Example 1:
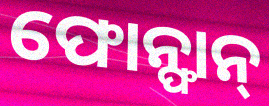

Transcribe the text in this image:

ଫୋନ୍ଫାନ୍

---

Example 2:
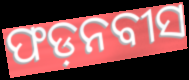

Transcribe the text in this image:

ଫଡ଼ନବୀସ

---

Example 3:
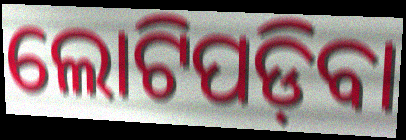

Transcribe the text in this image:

ଲୋଟିପଡ଼ିବା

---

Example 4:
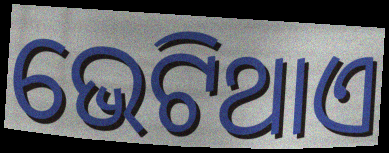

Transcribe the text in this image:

ଭେଟିଥାଏ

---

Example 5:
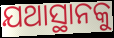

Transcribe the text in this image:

ଯଥାସ୍ଥାନକୁ